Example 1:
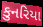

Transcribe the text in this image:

કુનરિયા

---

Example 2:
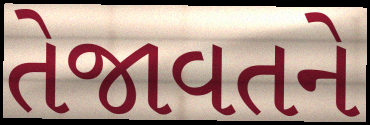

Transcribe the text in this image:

તેજાવતને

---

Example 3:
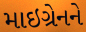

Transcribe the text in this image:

માઇગ્રેનને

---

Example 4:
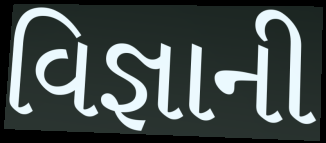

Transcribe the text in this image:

વિજ્ઞાની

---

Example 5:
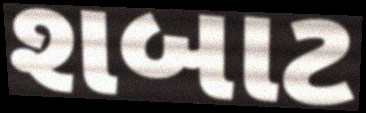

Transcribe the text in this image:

શબાટ